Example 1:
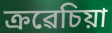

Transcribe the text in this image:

ক্ৰৱেচিয়া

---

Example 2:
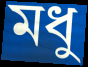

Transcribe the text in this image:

মধু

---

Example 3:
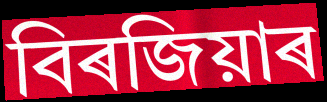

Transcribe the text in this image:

বিৰজিয়াৰ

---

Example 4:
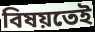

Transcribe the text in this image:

বিষয়তেই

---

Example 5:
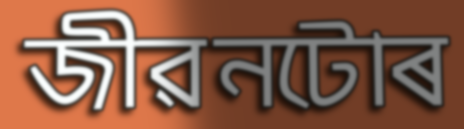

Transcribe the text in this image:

জীৱনটোৰ